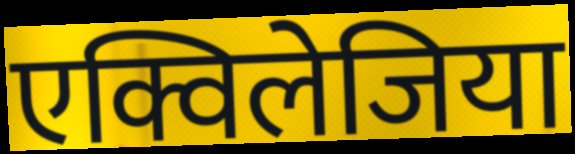
एक्विलेजिया